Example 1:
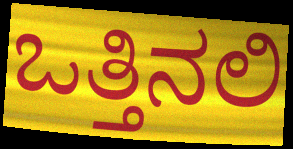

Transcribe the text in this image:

ಒತ್ತಿನಲಿ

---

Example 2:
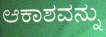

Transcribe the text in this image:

ಆಕಾಶವನ್ನು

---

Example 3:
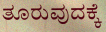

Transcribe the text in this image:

ತೂರುವುದಕ್ಕೆ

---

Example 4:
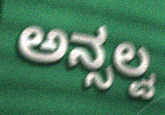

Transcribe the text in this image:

ಅನ್ಸಲ್ವ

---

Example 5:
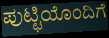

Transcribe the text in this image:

ಪುಟ್ಟಿಯೊಂದಿಗೆ